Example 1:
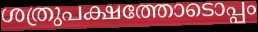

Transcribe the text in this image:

ശത്രുപക്ഷത്തോടൊപ്പം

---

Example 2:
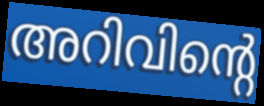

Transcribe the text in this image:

അറിവിന്റെ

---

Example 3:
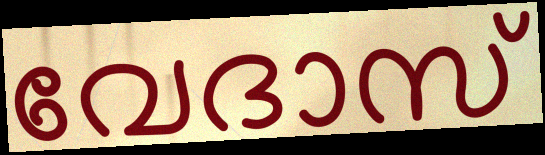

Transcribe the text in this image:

വേദാസ്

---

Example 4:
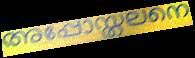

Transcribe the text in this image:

അപ്പോസ്തലനെ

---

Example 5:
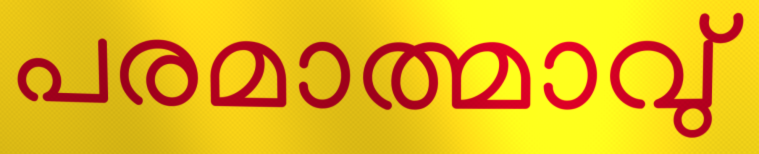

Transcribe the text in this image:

പരമാത്മാവു്